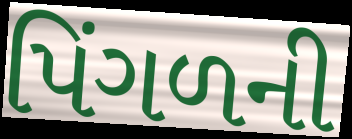
પિંગળની